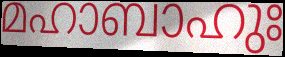
മഹാബാഹുഃ